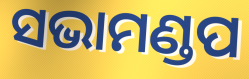
ସଭାମଣ୍ଡପ